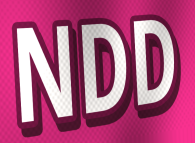
NDD